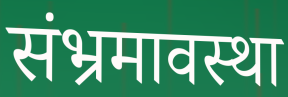
संभ्रमावस्था